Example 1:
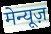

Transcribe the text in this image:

मेन्यूज़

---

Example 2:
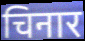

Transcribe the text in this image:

चिनार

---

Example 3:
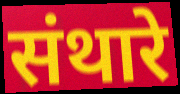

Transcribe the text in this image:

संथारे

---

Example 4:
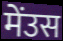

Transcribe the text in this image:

मेंउस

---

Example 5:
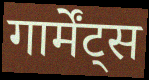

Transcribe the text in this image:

गार्मेंट्स